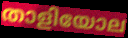
താളിയോല